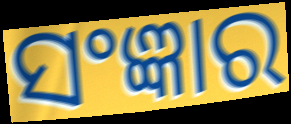
ସଂଜ୍ଞାର